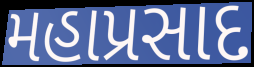
મહાપ્રસાદ